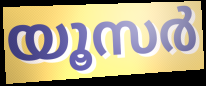
യൂസർ